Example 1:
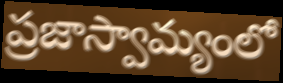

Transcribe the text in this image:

ప్రజాస్వామ్యంలో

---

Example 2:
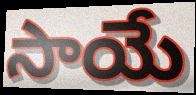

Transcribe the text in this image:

సాయే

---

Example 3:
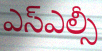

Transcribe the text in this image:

ఎస్ఎల్సీ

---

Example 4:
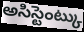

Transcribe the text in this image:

అసిస్టెంట్కు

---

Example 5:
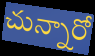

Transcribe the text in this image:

చున్నారో